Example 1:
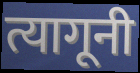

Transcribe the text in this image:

त्यागूनी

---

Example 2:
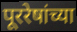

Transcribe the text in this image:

पूररेषांच्या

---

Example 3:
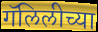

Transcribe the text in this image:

गॅलिलीच्या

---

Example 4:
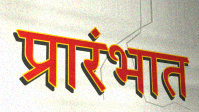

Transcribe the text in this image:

प्रारंभात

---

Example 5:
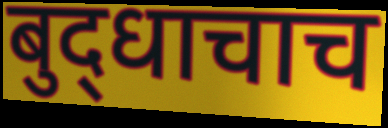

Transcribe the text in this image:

बुद्धाचाच